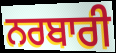
ਨਰਬਾਰੀ